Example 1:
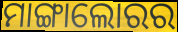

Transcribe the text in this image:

ମାଙ୍ଗାଲୋରର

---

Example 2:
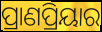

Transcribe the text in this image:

ପ୍ରାଣପ୍ରିୟାର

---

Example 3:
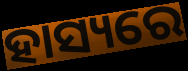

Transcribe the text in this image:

ହାସ୍ୟରେ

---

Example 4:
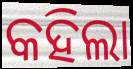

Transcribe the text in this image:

କହିଲା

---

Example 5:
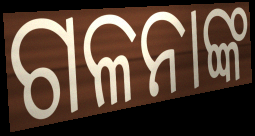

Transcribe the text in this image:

ଗଳନାଙ୍କ